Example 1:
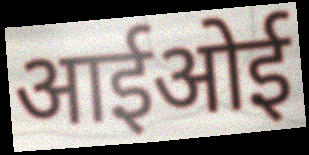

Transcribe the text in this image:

आईओई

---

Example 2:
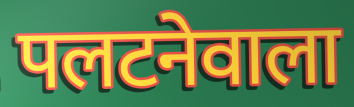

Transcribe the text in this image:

पलटनेवाला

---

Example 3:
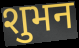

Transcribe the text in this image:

शुभन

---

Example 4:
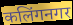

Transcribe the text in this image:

कलिंगनगर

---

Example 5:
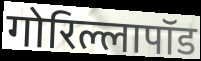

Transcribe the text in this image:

गोरिल्लापॉड